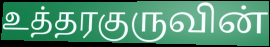
உத்தரகுருவின்